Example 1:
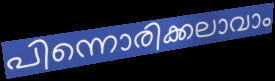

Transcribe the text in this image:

പിന്നൊരിക്കലാവാം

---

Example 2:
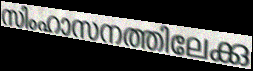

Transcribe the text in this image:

സിംഹാസനത്തിലേക്കു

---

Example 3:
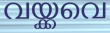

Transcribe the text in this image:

വയ്ക്കവെ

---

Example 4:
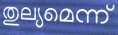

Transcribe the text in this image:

തുല്യമെന്ന്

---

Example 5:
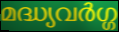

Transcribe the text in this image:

മദ്ധ്യവർഗ്ഗ